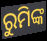
ରୁମିଙ୍କ